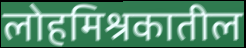
लोहमिश्रकातील